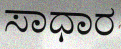
ಸಾಧಾರ